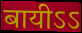
बायीऽऽ